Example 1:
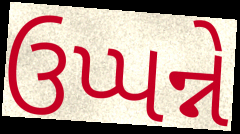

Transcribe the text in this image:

ઉપ્પન્ને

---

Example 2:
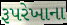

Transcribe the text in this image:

રૂપરેખાના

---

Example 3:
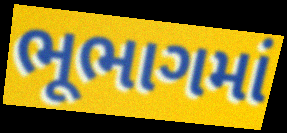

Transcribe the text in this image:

ભૂભાગમાં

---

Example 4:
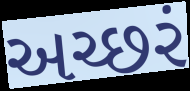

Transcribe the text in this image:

અચ્છરં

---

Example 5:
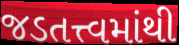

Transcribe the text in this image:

જડતત્ત્વમાંથી